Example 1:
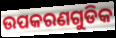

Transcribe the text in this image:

ଉପକରଣଗୁଡିକ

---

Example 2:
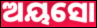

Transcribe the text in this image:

ଅୟସୋ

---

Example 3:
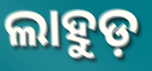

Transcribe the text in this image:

ଲାହୁଡ଼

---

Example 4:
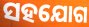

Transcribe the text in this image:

ସହଯୋଗ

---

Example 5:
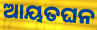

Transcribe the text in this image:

ଆୟତଘନ